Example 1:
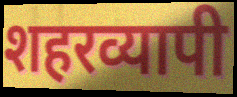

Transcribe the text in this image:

शहरव्यापी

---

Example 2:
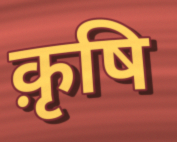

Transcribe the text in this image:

क़ृषि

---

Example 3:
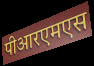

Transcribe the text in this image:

पीआरएमएस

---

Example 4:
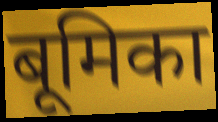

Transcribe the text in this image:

बूमिका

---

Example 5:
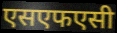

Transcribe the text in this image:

एसएफएसी